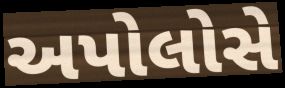
અપોલોસે